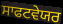
ਸਾਫਟਵੇਯਰ